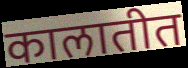
कालातीत